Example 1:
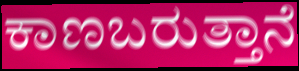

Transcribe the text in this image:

ಕಾಣಬರುತ್ತಾನೆ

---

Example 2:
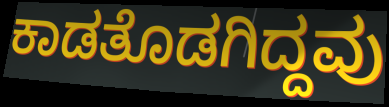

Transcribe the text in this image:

ಕಾಡತೊಡಗಿದ್ದವು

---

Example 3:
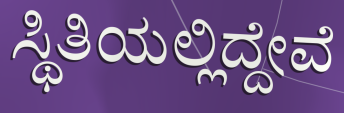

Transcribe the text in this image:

ಸ್ಥಿತಿಯಲ್ಲಿದ್ದೇವೆ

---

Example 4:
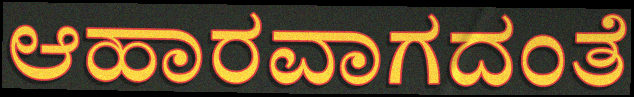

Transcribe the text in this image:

ಆಹಾರವಾಗದಂತೆ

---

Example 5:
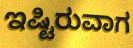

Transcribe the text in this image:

ಇಷ್ಟಿರುವಾಗ